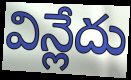
విన్లేదు